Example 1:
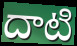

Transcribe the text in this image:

దాటి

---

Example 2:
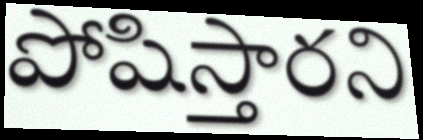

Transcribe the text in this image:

పోషిస్తారని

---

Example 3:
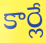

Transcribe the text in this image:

కార్లే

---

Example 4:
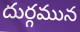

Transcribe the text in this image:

దుర్గమున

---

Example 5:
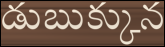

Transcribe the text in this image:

డుబుక్కున